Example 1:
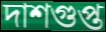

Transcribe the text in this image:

দাশগুপ্ত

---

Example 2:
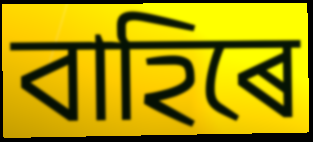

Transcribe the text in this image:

বাহিৰে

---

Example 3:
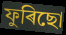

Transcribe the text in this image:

ফুৰিছো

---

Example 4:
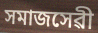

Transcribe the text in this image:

সমাজসেৱী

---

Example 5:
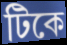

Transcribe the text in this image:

টিকে